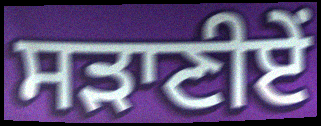
ਸੜਾਣੀਏਂ